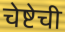
चेष्टेची